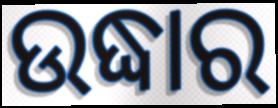
ଉଦ୍ଧାର